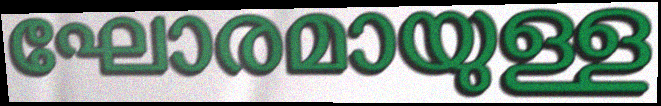
ഘോരമായുള്ള